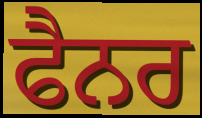
ਫੈਨਰ